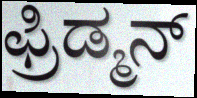
ಫ್ರಿಡ್ಮನ್